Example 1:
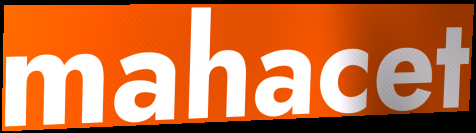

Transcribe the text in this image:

mahacet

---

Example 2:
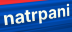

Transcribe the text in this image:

natrpani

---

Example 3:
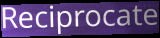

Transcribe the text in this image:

Reciprocate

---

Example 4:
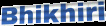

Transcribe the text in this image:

Bhikhiri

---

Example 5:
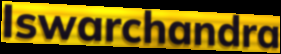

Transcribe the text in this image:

Iswarchandra